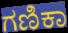
ಗಣಿಕಾ